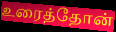
உரைத்தோன்